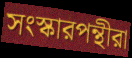
সংস্কারপন্থীরা